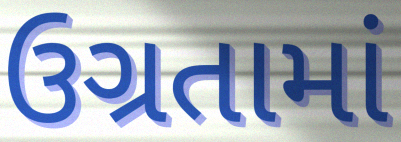
ઉગ્રતામાં